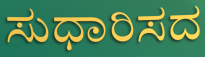
ಸುಧಾರಿಸದ